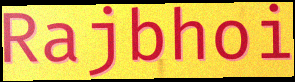
Rajbhoi